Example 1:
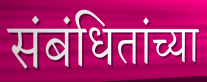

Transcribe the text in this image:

संबंधितांच्या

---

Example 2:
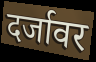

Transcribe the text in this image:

दर्जावर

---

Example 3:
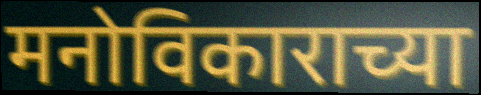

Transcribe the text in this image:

मनोविकाराच्या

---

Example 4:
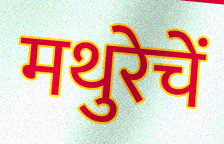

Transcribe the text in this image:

मथुरेचें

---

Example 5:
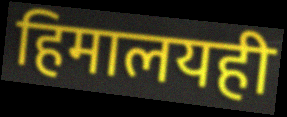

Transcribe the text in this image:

हिमालयही